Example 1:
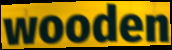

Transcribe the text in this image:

wooden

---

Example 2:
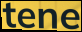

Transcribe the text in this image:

tene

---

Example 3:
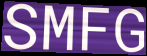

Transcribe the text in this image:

SMFG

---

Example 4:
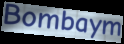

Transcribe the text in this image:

Bombaym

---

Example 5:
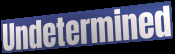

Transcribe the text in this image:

Undetermined